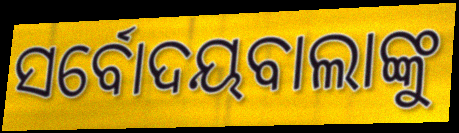
ସର୍ବୋଦୟବାଲାଙ୍କୁ